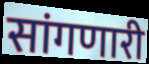
सांगणारी